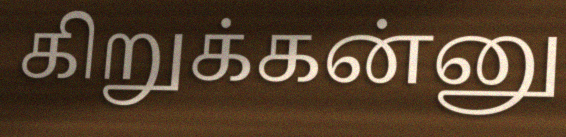
கிறுக்கன்னு